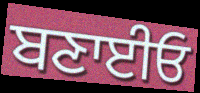
ਬਣਾਈਓ